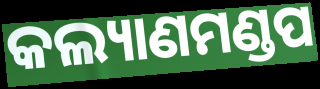
କଲ୍ୟାଣମଣ୍ଡପ